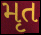
મૃત